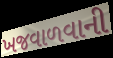
ખજવાળવાની